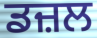
ਡਜ਼ਲ